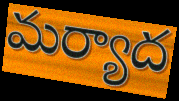
మర్యాద